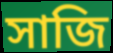
সাজি